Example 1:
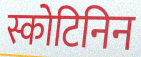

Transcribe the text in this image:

स्कोटिनिन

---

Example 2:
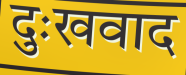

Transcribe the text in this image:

दुःखवाद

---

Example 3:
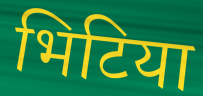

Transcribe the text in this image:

भिटिया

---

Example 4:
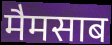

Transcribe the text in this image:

मैमसाब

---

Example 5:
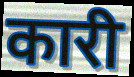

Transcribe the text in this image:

कारी